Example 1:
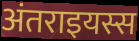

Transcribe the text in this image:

अंतराइयस्स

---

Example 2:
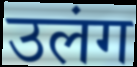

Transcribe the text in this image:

उलंग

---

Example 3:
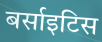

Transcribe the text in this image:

बर्साइटिस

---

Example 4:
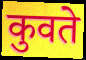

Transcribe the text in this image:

कुवते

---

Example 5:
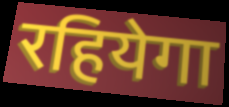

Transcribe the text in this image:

रहियेगा